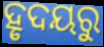
ହୃଦୟରୁ